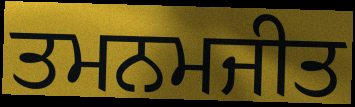
ਤਮਨਮਜੀਤ